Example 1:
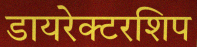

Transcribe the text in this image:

डायरेक्टरशिप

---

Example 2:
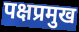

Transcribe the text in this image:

पक्षप्रमुख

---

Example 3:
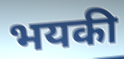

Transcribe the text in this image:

भयकी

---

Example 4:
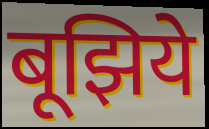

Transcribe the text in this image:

बूझिये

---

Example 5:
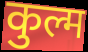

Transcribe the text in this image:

कुल्म